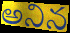
అనిన